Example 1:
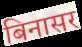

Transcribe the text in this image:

बिनासर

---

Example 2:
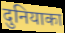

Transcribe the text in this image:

दुनियाका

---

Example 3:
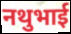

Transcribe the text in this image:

नथुभाई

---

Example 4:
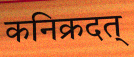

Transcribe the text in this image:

कनिक्रदत्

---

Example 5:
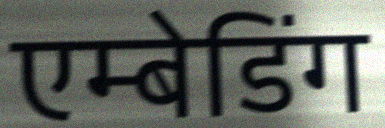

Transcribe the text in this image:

एम्बेडिंग